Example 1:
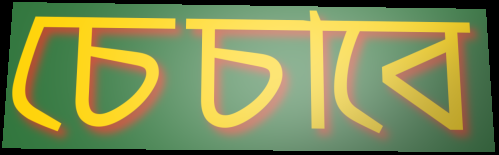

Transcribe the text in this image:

চেচাবে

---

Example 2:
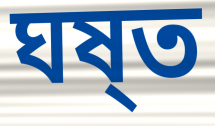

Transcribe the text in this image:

ঘষ্ত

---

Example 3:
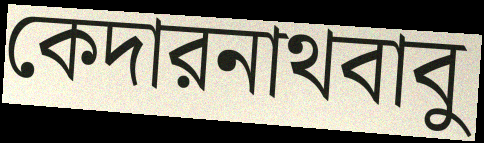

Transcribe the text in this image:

কেদারনাথবাবু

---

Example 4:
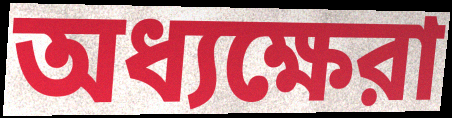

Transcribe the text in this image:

অধ্যক্ষেরা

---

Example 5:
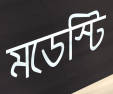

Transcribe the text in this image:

মডেস্টি